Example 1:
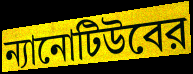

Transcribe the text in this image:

ন্যানোটিউবের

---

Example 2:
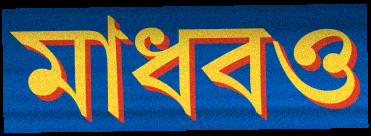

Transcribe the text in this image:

মাধবও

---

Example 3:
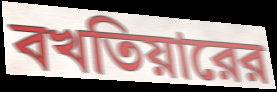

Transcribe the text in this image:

বখতিয়ারের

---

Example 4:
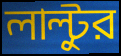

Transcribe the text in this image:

লাল্টুর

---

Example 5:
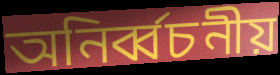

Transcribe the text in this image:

অনির্ব্বচনীয়